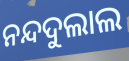
ନନ୍ଦଦୁଲାଲ